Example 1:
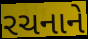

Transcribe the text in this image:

રચનાને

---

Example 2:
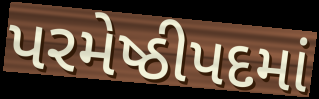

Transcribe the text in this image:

પરમેષ્ઠીપદમાં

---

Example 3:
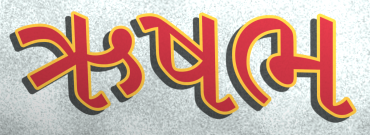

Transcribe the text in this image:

ઋષભ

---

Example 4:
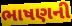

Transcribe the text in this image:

ભાષણની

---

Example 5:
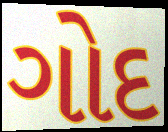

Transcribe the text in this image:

ગોદ